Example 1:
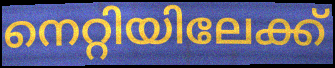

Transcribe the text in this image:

നെറ്റിയിലേക്ക്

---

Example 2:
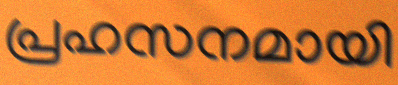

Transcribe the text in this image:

പ്രഹസനമായി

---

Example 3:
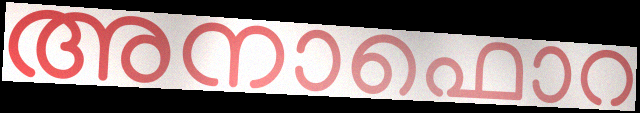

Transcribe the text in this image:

അനാഫൊറ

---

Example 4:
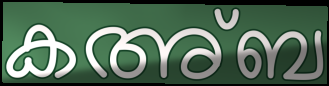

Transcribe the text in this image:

കഅ്ബ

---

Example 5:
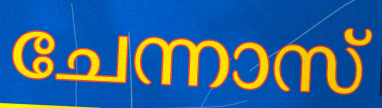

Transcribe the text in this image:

ചേന്നാസ്